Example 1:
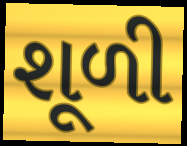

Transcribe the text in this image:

શૂળી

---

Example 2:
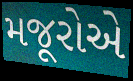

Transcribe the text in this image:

મજૂરોએ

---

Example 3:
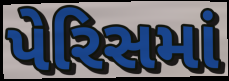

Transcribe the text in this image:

પેરિસમાં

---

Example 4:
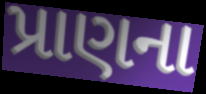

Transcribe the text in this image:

પ્રાણના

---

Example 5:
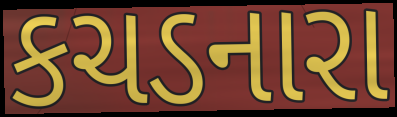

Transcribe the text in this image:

કચડનારા